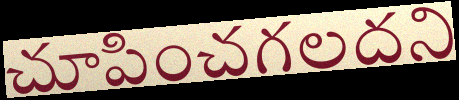
చూపించగలదని